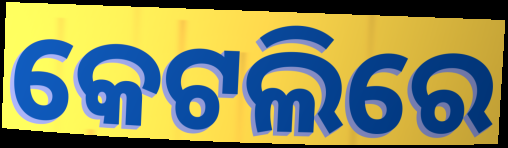
କେଟଲିରେ